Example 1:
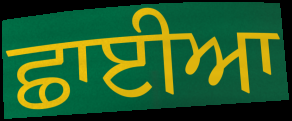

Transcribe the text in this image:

ਛਾਈਆ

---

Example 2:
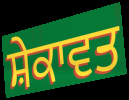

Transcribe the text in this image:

ਸ਼ੇਕਾਵਤ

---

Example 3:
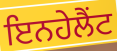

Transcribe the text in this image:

ਇਨਹੇਲੈਂਟ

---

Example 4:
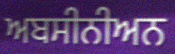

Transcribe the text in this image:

ਅਬਸੀਨੀਅਨ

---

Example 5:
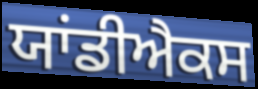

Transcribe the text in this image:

ਯਾਂਡੀਐਕਸ